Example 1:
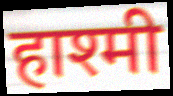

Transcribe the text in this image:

हाश्मी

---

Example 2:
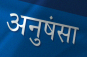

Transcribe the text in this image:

अनुषंसा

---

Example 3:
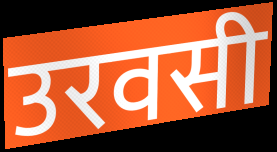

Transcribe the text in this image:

उरवसी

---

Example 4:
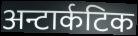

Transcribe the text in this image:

अन्टार्कटिक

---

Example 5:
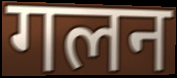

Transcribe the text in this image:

गलन